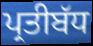
ਪ੍ਰਤੀਬੱਧ